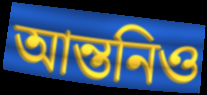
আন্তনিও